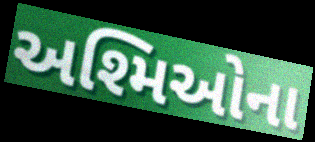
અશ્મિઓના